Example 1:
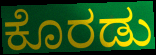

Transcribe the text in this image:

ಕೊರಡು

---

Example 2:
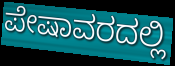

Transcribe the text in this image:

ಪೇಷಾವರದಲ್ಲಿ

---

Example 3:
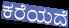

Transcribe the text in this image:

ಕರೆಯದೆ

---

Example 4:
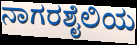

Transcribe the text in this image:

ನಾಗರಶೈಲಿಯ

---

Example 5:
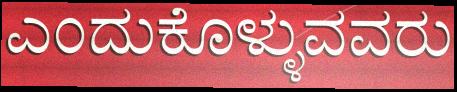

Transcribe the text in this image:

ಎಂದುಕೊಳ್ಳುವವರು